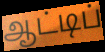
ஆட்டிப்